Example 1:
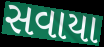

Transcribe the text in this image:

સવાયા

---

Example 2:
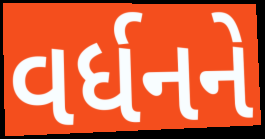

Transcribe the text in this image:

વર્ધનને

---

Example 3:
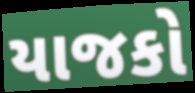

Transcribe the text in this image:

યાજકો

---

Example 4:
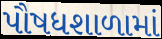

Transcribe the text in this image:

પૌષધશાળામાં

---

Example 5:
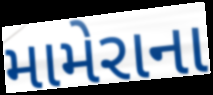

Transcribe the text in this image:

મામેરાના